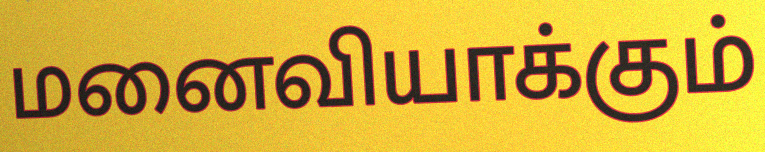
மனைவியாக்கும்